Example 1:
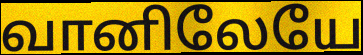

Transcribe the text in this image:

வானிலேயே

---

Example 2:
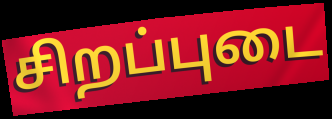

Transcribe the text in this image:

சிறப்புடை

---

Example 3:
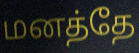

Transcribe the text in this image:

மனத்தே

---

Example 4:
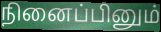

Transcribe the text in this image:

நினைப்பினும்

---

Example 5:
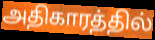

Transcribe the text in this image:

அதிகாரத்தில்